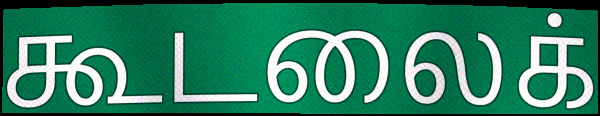
கூடலைக்